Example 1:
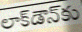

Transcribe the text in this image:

లాక్‌డౌన్‌కు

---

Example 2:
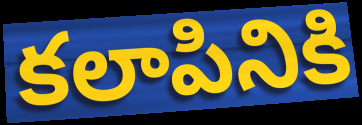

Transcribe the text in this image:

కలాపినికి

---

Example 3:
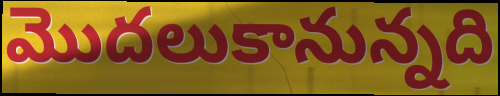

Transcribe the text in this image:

మొదలుకానున్నది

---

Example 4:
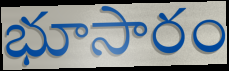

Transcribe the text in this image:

భూసారం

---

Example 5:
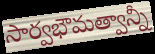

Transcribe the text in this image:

సార్వభౌమత్వాన్నీ